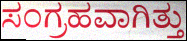
ಸಂಗ್ರಹವಾಗಿತ್ತು